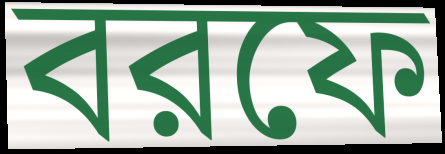
বরফে